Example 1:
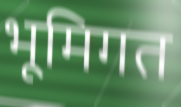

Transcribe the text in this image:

भूमिगत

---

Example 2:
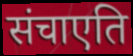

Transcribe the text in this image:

संचाएति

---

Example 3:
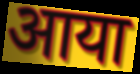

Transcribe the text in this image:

आया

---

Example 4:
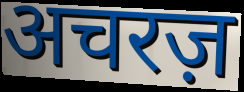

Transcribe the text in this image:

अचरज़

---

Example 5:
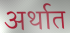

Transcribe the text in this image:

अर्थात